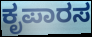
ಕೃಪಾರಸ